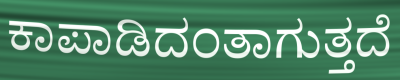
ಕಾಪಾಡಿದಂತಾಗುತ್ತದೆ